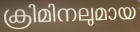
ക്രിമിനലുമായ